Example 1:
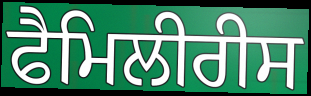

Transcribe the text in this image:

ਫੈਮਿਲੀਰੀਸ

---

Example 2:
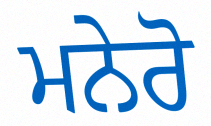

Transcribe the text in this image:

ਮਨੇਰੋ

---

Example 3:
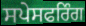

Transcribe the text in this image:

ਸਪੇਸਫਰਿੰਗ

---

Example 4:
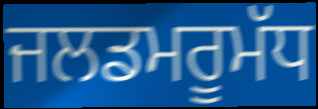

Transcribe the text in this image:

ਜਲਡਮਰੂਮੱਧ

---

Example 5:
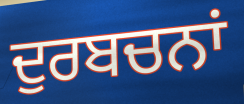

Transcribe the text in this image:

ਦੁਰਬਚਨਾਂ